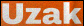
Uzak